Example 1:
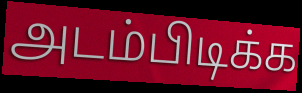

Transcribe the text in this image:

அடம்பிடிக்க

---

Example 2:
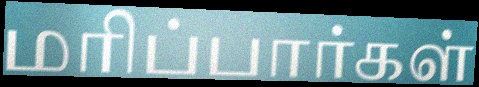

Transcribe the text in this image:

மரிப்பார்கள்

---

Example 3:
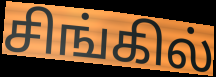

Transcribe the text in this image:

சிங்கில்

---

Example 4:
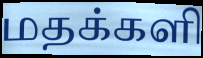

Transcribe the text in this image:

மதக்களி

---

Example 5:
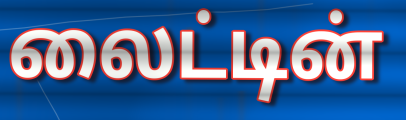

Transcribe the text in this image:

லைட்டின்